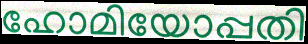
ഹോമിയോപ്പതി